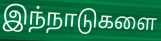
இந்நாடுகளை